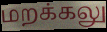
மறக்கலு